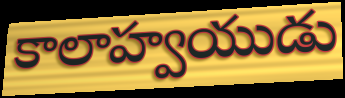
కాలాహ్వయుడు